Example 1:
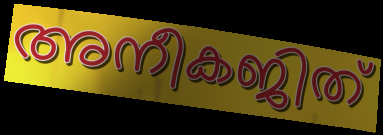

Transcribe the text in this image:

അനീകജിത്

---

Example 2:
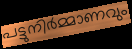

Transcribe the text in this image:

പട്ടുനിർമ്മാണവും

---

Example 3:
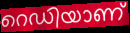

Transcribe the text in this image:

റെഡിയാണ്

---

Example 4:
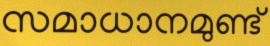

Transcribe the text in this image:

സമാധാനമുണ്ട്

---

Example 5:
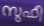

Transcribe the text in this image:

സുഫീ